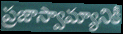
ప్రజాస్వామ్యానికీ